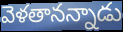
వెళతానన్నాడు